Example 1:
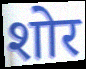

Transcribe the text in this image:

शोर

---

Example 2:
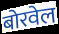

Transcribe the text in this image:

बोरवेल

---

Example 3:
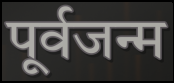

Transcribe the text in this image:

पूर्वजन्‍म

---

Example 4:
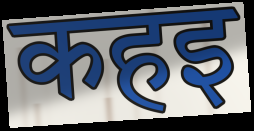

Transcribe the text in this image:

कहइ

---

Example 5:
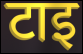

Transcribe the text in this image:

टाइ